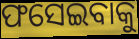
ଫସେଇବାକୁ